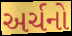
અર્ચનો